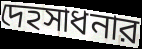
দেহসাধনার